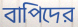
বাপিদের